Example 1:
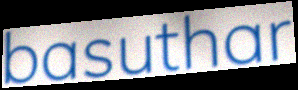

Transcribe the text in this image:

basuthar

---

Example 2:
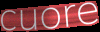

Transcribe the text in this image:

cuore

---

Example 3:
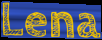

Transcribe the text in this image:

Lena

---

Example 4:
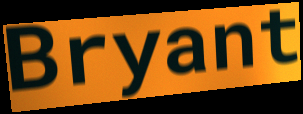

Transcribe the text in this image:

Bryant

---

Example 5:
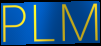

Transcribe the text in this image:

PLM